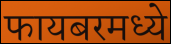
फायबरमध्ये